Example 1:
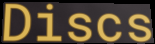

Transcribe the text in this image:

Discs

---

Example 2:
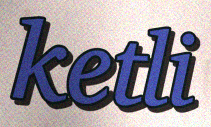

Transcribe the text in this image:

ketli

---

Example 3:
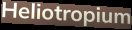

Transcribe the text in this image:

Heliotropium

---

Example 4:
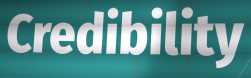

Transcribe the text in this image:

Credibility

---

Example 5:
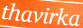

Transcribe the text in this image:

thavirka